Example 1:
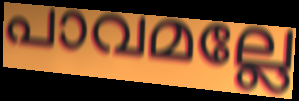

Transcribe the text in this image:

പാവമല്ലേ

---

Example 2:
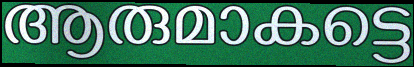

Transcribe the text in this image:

ആരുമാകട്ടെ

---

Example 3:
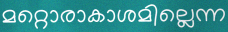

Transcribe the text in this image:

മറ്റൊരാകാശമില്ലെന്ന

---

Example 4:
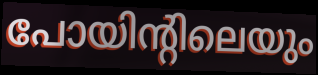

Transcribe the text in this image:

പോയിന്റിലെയും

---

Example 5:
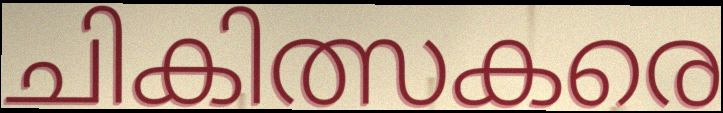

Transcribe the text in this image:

ചികിത്സകരെ